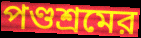
পণ্ডশ্রমের